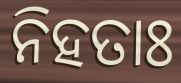
ନିହତାଃ